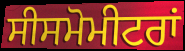
ਸੀਸਮੋਮੀਟਰਾਂ